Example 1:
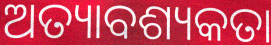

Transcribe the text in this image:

ଅତ୍ୟାବଶ୍ୟକତା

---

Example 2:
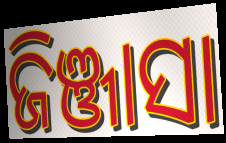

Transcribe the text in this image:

ଜିଞ୍ଜାସା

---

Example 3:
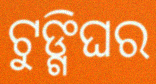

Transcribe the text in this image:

ଟୁଙ୍ଗିଘର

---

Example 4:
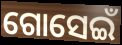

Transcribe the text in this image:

ଗୋସେଇଁ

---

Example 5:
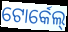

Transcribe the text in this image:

ଟୋର୍କେଲ୍